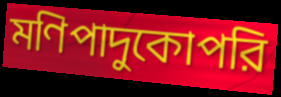
মণিপাদুকোপরি